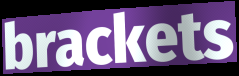
brackets